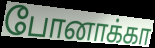
போனாக்கா